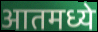
आतमध्ये